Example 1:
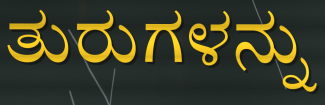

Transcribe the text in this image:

ತುರುಗಳನ್ನು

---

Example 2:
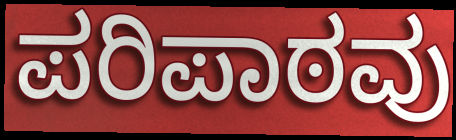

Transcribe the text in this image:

ಪರಿಪಾಠವು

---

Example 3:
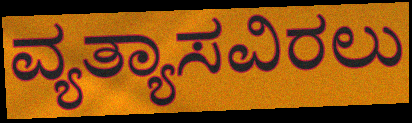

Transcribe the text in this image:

ವ್ಯತ್ಯಾಸವಿರಲು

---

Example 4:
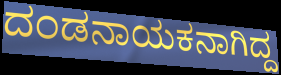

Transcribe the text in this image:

ದಂಡನಾಯಕನಾಗಿದ್ದ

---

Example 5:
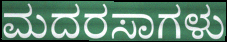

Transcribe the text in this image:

ಮದರಸಾಗಳು